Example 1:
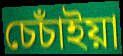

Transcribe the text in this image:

চেচাঁইয়া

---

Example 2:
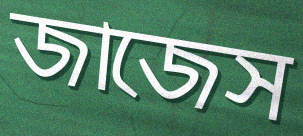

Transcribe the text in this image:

জাজেস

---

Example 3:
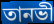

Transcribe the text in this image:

তানভী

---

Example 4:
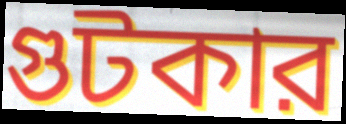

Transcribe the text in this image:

গুটকার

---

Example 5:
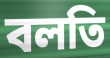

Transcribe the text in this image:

বলতি